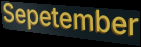
Sepetember